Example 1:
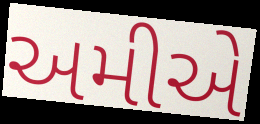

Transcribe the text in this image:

અમીએ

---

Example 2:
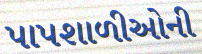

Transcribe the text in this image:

પાપશાળીઓની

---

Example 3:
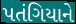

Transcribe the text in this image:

પતંગિયાને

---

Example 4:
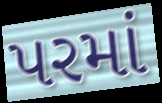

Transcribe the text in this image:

પરમાં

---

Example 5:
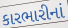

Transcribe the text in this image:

કારભારીનાં